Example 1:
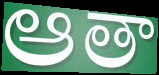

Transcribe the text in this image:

ఆతా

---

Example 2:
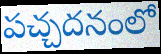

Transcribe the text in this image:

పచ్చదనంలో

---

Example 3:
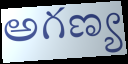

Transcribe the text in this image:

అగణ్య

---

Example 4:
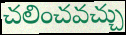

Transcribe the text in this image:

చలించవచ్చు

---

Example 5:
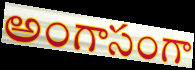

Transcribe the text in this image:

అంగాసంగా